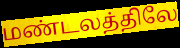
மண்டலத்திலே